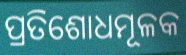
ପ୍ରତିଶୋଧମୂଳକ